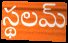
స్థలమ్